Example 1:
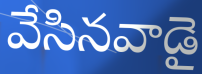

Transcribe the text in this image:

వేసినవాడై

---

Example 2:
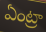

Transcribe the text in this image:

ఏంట్రా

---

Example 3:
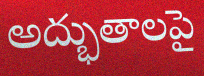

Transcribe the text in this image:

అద్భుతాలపై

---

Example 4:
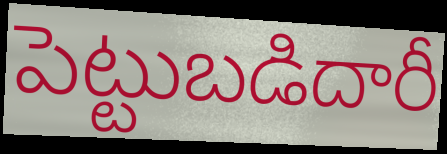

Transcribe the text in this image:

పెట్టుబడిదారీ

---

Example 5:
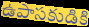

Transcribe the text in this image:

ఉపాసకుడికి